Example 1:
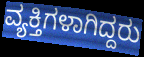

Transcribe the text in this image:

ವ್ಯಕ್ತಿಗಳಾಗಿದ್ದರು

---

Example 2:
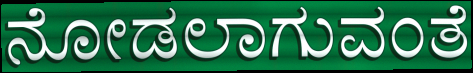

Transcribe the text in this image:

ನೋಡಲಾಗುವಂತೆ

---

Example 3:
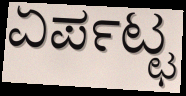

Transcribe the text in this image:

ಏರ್ಪಟ್ಟ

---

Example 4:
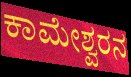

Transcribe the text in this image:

ಕಾಮೇಶ್ವರನ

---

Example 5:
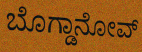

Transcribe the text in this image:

ಬೊಗ್ಡಾನೋವ್